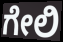
ಗೇಲಿ